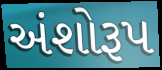
અંશોરૂપ